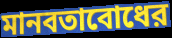
মানবতাবোধের